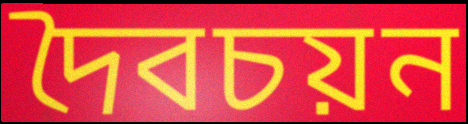
দৈবচয়ন